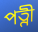
পত্নী